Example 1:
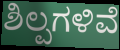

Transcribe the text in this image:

ಶಿಲ್ಪಗಳಿವೆ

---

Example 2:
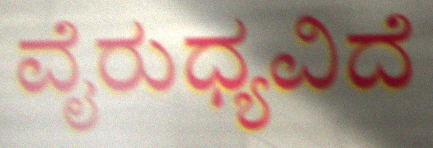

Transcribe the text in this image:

ವೈರುಧ್ಯವಿದೆ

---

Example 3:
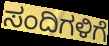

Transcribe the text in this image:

ಸಂದಿಗಳಿಗೆ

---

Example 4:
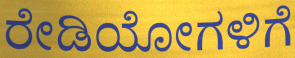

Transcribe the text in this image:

ರೇಡಿಯೋಗಳಿಗೆ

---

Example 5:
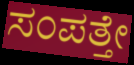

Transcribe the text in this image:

ಸಂಪತ್ತೇ